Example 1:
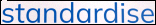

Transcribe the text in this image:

standardise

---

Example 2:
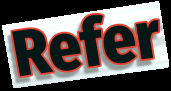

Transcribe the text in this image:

Refer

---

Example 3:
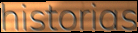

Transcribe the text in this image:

historias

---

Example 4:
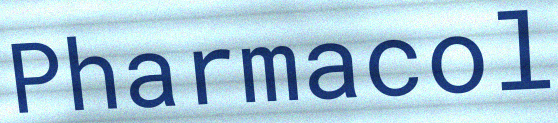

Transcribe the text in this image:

Pharmacol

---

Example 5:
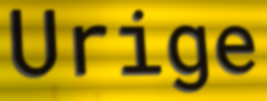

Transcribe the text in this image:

Urige